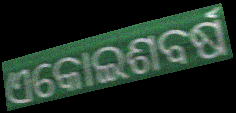
ଏକୋଇଶବର୍ଷ